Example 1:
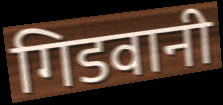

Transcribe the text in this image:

गिडवानी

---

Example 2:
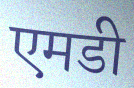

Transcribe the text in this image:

एमडी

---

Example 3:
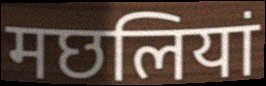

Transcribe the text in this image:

मछलियां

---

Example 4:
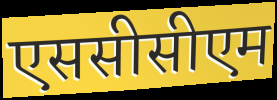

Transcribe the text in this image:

एससीसीएम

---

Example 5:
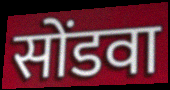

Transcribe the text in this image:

सोंडवा